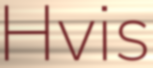
Hvis